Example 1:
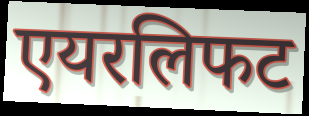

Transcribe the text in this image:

एयरलिफट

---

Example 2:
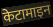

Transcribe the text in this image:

केटामाइन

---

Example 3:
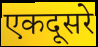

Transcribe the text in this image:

एकदूसरे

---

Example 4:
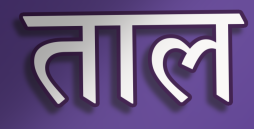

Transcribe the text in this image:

ताल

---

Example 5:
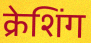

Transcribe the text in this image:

क्रेशिंग